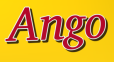
Ango